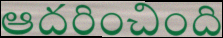
ఆదరించింది